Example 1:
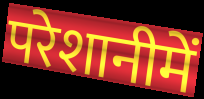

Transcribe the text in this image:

परेशानीमें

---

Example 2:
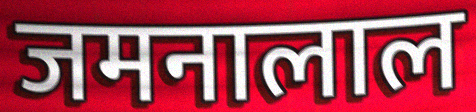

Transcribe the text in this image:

जमनालाल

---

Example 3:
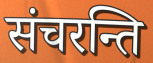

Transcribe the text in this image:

संचरन्ति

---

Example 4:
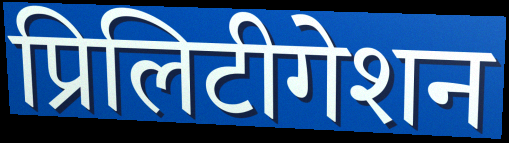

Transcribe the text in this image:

प्रिलिटीगेशन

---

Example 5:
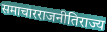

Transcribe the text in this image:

समाचारराजनीतिराज्य